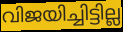
വിജയിച്ചിട്ടില്ല